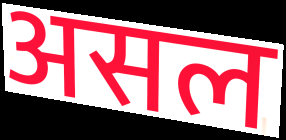
असल